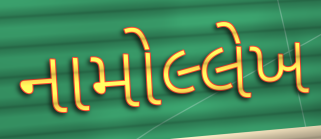
નામોલ્લેખ